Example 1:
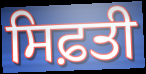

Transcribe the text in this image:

ਸਿਫ਼ਤੀ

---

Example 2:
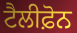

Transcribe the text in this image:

ਟੈਲੀਫ਼ੋਨ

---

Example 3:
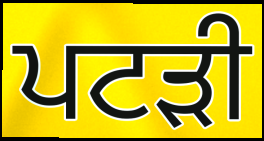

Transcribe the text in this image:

ਪਟੜੀ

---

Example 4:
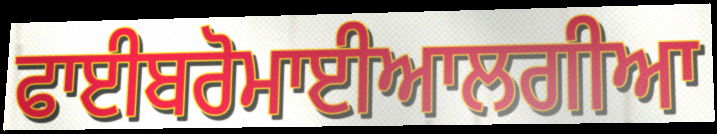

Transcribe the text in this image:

ਫਾਈਬਰੋਮਾਈਆਲਗੀਆ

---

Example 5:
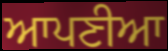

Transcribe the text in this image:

ਆਪਣੀਆ